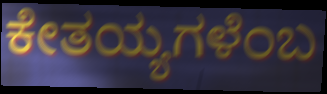
ಕೇತಯ್ಯಗಳೆಂಬ